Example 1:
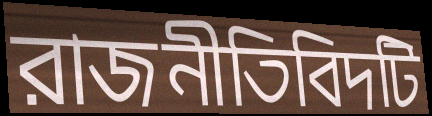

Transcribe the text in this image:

রাজনীতিবিদটি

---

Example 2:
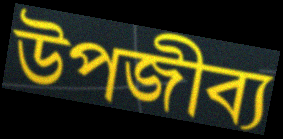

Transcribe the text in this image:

উপজীব্য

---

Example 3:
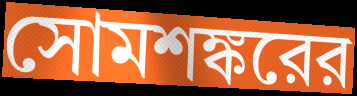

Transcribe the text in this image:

সোমশঙ্করের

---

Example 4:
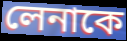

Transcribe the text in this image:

লেনাকে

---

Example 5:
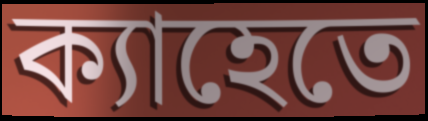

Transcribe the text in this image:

ক্যাহেতে